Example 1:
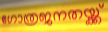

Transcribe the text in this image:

ഗോത്രജനതയ്ക്ക്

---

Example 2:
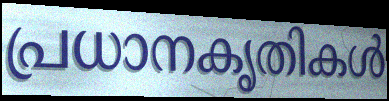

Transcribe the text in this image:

പ്രധാനകൃതികൾ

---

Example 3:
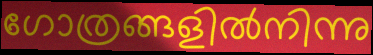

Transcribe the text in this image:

ഗോത്രങ്ങളിൽനിന്നു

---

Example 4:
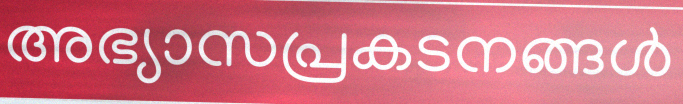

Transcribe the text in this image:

അഭ്യാസപ്രകടനങ്ങൾ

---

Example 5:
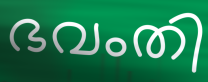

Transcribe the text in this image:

ഭവംതി